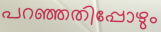
പറഞ്ഞതിപ്പോഴും